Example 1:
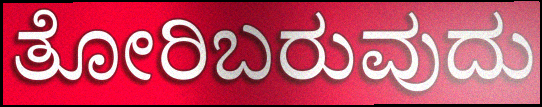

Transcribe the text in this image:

ತೋರಿಬರುವುದು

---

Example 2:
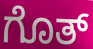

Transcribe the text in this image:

ಗೊತ್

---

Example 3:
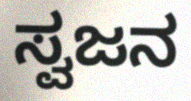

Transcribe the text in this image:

ಸ್ವಜನ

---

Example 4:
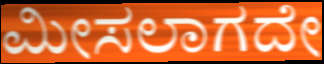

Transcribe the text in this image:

ಮೀಸಲಾಗದೇ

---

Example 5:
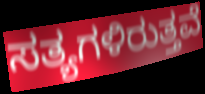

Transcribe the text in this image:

ಸತ್ಯಗಳಿರುತ್ತವೆ